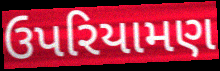
ઉપરિયામણ